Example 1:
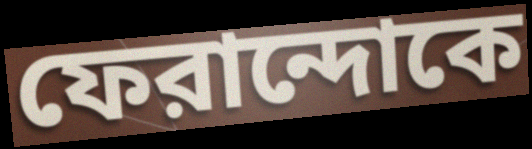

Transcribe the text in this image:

ফেরান্দোকে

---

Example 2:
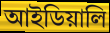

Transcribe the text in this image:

আইডিয়ালি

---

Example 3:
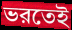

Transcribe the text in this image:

ভরতেই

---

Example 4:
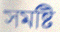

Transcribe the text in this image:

সমষ্টি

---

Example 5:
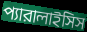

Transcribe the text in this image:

প্যারালাইসিস